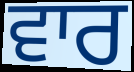
ਵਾਰ